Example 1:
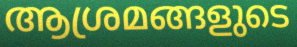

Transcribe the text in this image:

ആശ്രമങ്ങളുടെ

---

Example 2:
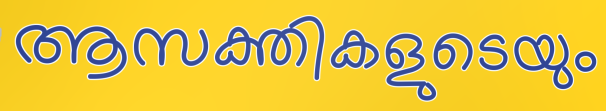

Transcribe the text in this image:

ആസക്തികളുടെയും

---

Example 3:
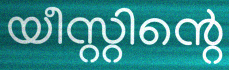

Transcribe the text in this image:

യീസ്റ്റിന്റെ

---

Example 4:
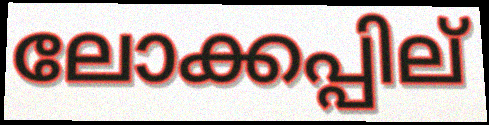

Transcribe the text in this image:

ലോക്കപ്പില്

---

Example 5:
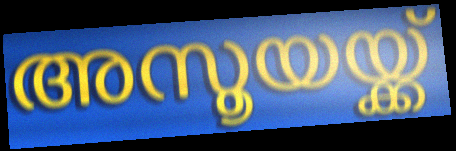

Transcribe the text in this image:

അസൂയയ്ക്ക്